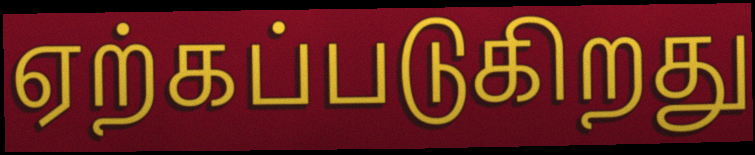
ஏற்கப்படுகிறது